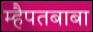
म्हैपतबाबा